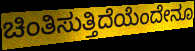
ಚಿಂತಿಸುತ್ತಿದೆಯೆಂದೇನೂ